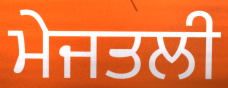
ਮੇਜਤਲੀ